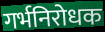
गर्भनिरोधक